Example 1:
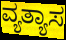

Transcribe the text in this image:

ವ್ಯತ್ಯಾಸ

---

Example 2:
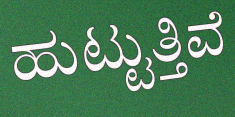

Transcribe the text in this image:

ಹುಟ್ಟುತ್ತಿವೆ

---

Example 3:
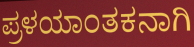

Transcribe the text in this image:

ಪ್ರಳಯಾಂತಕನಾಗಿ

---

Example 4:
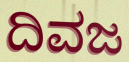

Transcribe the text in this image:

ದಿವಜ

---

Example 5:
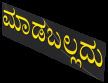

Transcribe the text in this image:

ಮಾಡಬಲ್ಲದು